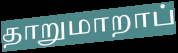
தாறுமாறாப்